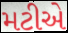
મટીએ